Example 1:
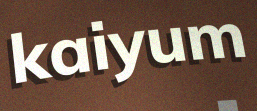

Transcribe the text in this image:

kaiyum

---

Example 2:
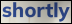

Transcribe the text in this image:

shortly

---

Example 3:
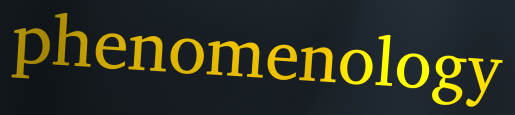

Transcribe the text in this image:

phenomenology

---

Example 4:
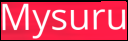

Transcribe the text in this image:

Mysuru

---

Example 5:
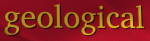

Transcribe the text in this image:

geological